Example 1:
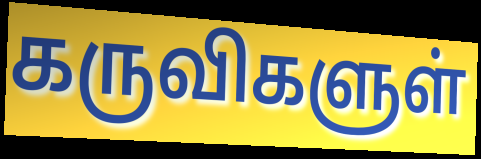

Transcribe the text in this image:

கருவிகளுள்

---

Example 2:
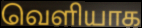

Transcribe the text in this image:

வெளியாக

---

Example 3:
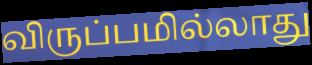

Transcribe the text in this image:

விருப்பமில்லாது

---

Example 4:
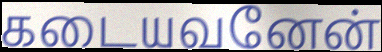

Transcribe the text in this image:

கடையவனேன்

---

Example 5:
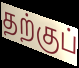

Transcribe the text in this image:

தற்குப்